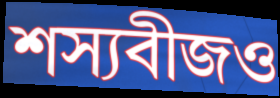
শস্যবীজও